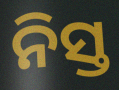
ନିସ୍ତ